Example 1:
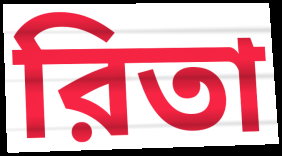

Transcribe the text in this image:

রিতা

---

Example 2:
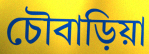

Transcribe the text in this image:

চৌবাড়িয়া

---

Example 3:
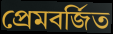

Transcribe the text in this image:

প্রেমবর্জিত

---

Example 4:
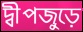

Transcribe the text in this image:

দ্বীপজুড়ে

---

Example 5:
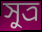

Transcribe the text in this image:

সুত্র